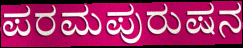
ಪರಮಪುರುಷನ